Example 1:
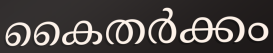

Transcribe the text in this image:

കൈതർക്കം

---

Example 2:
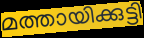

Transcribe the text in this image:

മത്തായിക്കുട്ടി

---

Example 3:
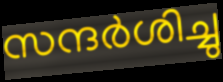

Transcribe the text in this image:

സന്ദർശിച്ചു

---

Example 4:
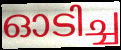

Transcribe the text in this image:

ഓടിച്ച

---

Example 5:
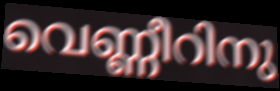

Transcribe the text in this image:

വെണ്ണീറിനു